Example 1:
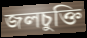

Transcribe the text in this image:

জলচুক্তি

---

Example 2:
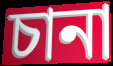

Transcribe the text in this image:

চানা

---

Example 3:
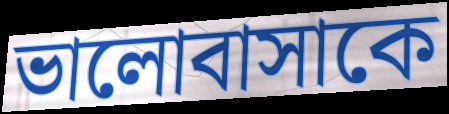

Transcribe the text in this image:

ভালোবাসাকে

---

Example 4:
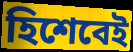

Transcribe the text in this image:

হিশেবেই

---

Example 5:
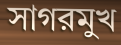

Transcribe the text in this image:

সাগরমুখ